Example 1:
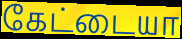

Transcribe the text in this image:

கேட்டையா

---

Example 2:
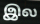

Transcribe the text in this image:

இல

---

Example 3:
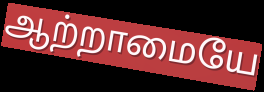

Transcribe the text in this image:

ஆற்றாமையே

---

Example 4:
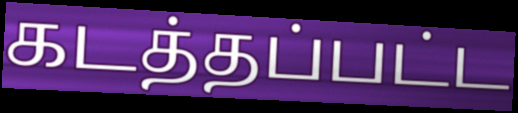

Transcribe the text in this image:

கடத்தப்பட்ட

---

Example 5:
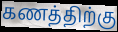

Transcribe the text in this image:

கணத்திற்கு